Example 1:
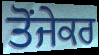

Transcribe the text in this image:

ਤੋਂਜੇਕਰ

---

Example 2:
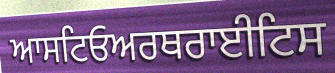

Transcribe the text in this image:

ਆਸਟਿਓਅਰਥਰਾਈਟਿਸ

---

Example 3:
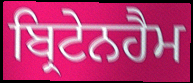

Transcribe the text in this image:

ਬ੍ਰਿਟੇਨਹੈਮ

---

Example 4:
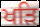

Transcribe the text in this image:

ਖੜਿ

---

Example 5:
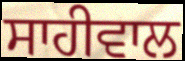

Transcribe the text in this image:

ਸਾਹੀਵਾਲ